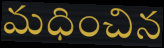
మధించిన